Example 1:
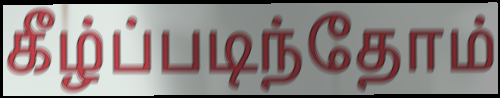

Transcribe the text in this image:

கீழ்ப்படிந்தோம்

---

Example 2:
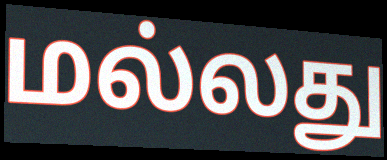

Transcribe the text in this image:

மல்லது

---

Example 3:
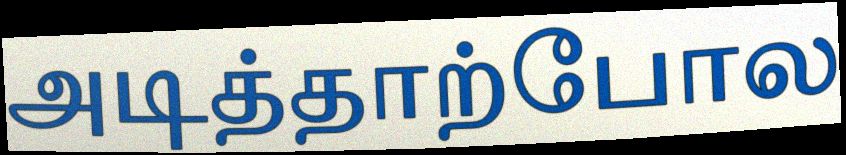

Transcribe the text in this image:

அடித்தாற்போல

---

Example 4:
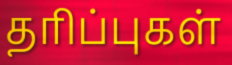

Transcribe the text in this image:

தரிப்புகள்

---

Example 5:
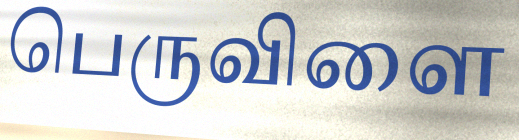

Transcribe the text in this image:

பெருவிளை